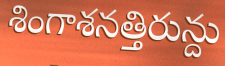
శింగాశనత్తిరున్దు